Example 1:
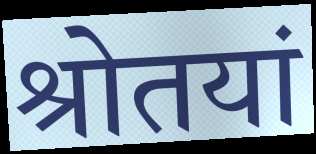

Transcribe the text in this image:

श्रोतयां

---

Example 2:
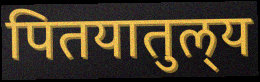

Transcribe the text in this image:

पितयातुल्य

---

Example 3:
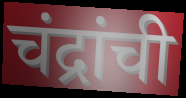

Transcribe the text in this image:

चंद्रांची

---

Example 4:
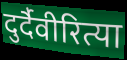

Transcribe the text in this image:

दुर्दैवीरित्या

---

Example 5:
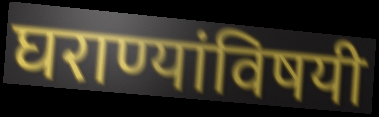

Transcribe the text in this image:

घराण्यांविषयी